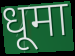
धूमा